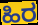
ಹಿರ